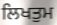
ਲਿਖਤੁਮ